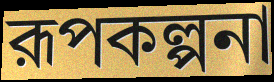
রূপকল্পনা